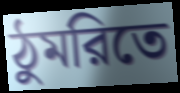
ঠুমরিতে